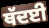
ਥੱਦਈ